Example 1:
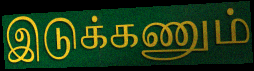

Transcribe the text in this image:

இடுக்கணும்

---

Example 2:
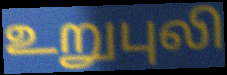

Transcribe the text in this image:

உறுபுலி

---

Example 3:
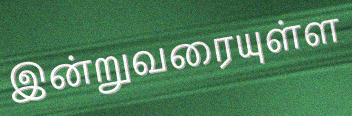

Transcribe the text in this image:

இன்றுவரையுள்ள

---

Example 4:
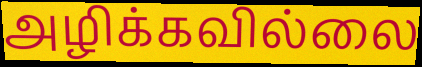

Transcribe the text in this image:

அழிக்கவில்லை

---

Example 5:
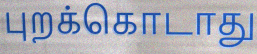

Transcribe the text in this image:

புறக்கொடாது